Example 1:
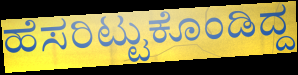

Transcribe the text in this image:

ಹೆಸರಿಟ್ಟುಕೊಂಡಿದ್ದ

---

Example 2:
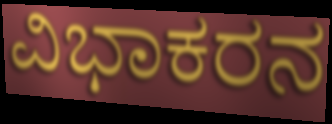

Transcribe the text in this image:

ವಿಭಾಕರನ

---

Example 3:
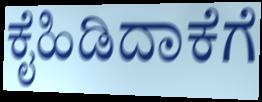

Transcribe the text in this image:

ಕೈಹಿಡಿದಾಕೆಗೆ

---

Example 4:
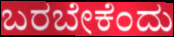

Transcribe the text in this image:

ಬರಬೇಕೆಂದು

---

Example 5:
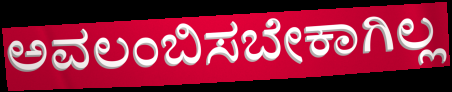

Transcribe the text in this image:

ಅವಲಂಬಿಸಬೇಕಾಗಿಲ್ಲ